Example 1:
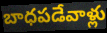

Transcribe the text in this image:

బాధపడేవాళ్లు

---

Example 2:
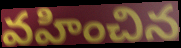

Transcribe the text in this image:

వహించిన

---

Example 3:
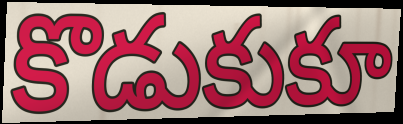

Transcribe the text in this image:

కొడుకుకూ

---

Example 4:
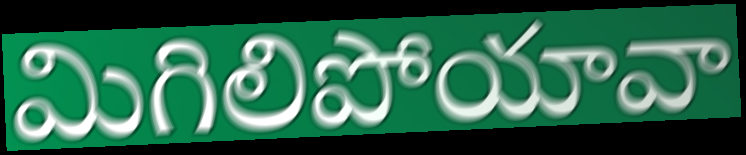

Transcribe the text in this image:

మిగిలిపోయావా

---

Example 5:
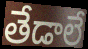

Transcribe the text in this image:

తేడాలే